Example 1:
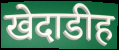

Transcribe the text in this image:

खेदाडीह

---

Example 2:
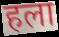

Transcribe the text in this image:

हला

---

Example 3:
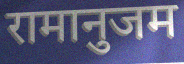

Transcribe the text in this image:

रामानुजम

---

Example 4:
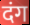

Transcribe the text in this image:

दंग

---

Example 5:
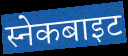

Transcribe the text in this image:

स्नेकबाइट